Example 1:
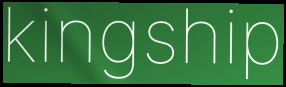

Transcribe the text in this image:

kingship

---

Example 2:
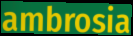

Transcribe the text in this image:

ambrosia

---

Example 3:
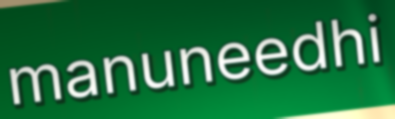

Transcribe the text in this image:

manuneedhi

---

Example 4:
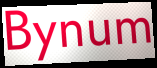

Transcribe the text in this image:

Bynum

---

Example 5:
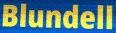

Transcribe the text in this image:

Blundell